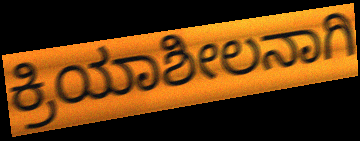
ಕ್ರಿಯಾಶೀಲನಾಗಿ